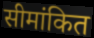
सीमांकित